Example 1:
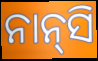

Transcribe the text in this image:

ନାନ୍‌ସି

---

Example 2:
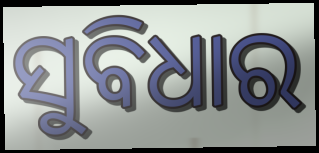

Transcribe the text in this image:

ସୁବିଧାର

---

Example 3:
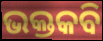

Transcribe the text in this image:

ଭକ୍ତକବି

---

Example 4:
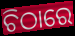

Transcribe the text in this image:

ଚିଠାରେ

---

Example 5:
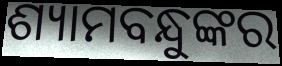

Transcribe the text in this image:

ଶ୍ୟାମବନ୍ଧୁଙ୍କର